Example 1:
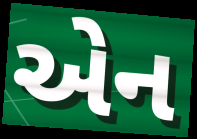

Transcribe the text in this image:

એન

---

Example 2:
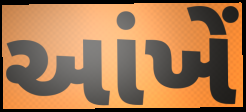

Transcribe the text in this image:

આંખેં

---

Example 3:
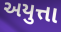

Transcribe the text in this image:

અયુત્તા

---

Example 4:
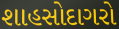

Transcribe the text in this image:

શાહસોદાગરો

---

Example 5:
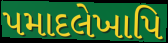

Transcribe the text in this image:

પમાદલેખાપિ